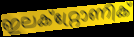
ഇലക്റ്റ്രോണിക്